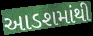
આડશમાંથી